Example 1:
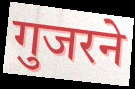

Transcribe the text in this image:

गुजरने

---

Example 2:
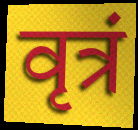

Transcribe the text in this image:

वृत्रं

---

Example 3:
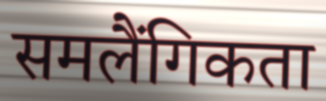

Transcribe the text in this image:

समलैंगिकता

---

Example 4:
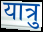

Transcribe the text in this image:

यात्रु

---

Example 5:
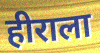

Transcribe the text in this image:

हीराला